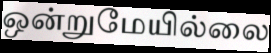
ஒன்றுமேயில்லை